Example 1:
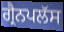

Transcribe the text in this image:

ਗ੍ਰੈਨਪਲੱਸ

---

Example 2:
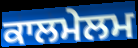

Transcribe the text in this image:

ਕਾਲਮੇਲਮ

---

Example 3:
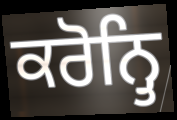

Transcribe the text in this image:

ਕਰੋਨ੍ਤਿ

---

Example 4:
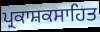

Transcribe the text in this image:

ਪ੍ਰਕਾਸ਼ਕਸਾਹਿਤ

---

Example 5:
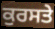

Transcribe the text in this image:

ਕੁਰਸਤੇ